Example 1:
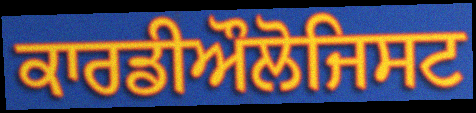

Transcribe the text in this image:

ਕਾਰਡੀਔਲੋਜਿਸਟ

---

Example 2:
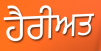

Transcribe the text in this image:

ਹੈਰੀਅਤ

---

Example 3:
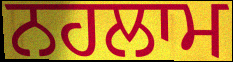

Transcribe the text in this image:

ਨਹਲਾਮ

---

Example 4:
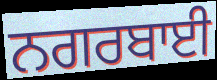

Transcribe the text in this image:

ਨਗਰਬਾਈ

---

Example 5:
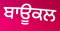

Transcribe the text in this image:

ਬਾਊਕਲ